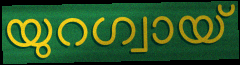
യുറഗ്വായ്